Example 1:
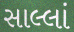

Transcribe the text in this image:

સાલ્લાં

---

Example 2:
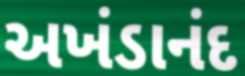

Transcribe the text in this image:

અખંડાનંદ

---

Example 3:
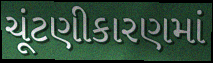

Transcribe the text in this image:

ચૂંટણીકારણમાં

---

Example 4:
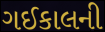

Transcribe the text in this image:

ગઈકાલની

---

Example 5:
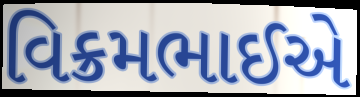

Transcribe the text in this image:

વિક્રમભાઈએ